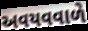
અવયવવાળે